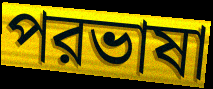
পরভাষা